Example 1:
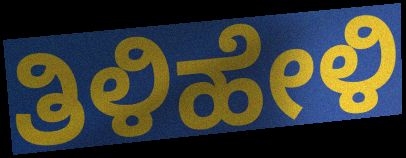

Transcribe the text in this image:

ತಿಳಿಹೇಳಿ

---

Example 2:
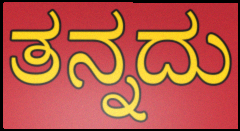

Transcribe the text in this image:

ತನ್ನದು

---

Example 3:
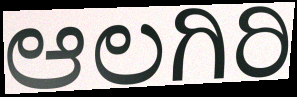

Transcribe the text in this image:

ಆಲಗಿರಿ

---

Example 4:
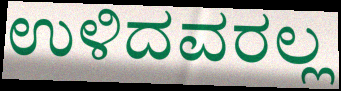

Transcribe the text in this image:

ಉಳಿದವರಲ್ಲ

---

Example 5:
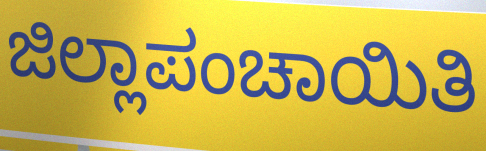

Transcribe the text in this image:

ಜಿಲ್ಲಾಪಂಚಾಯಿತಿ